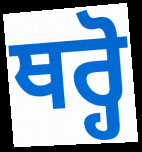
ਥਰ੍ਹੋ